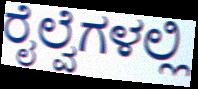
ರೈಲ್ವೆಗಳಲ್ಲಿ